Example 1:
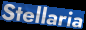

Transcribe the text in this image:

Stellaria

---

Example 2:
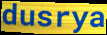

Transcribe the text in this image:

dusrya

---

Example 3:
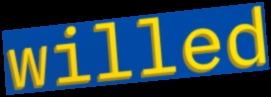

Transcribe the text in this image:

willed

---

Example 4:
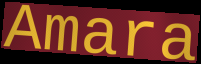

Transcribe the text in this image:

Amara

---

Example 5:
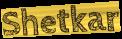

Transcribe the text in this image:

Shetkar